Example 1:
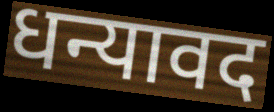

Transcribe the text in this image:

धन्यावद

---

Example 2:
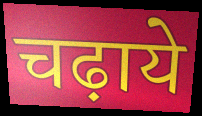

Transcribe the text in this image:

चढ़ाये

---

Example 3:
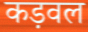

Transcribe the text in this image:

कड़वल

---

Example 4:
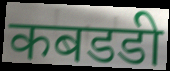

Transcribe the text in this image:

कबडडी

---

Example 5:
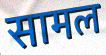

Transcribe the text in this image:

सामल